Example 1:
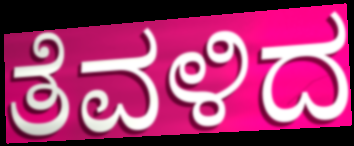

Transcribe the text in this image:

ತೆವಳಿದ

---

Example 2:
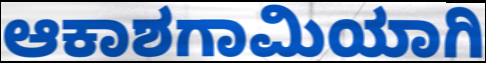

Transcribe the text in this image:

ಆಕಾಶಗಾಮಿಯಾಗಿ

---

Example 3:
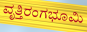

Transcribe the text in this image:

ವೃತ್ತಿರಂಗಭೂಮಿ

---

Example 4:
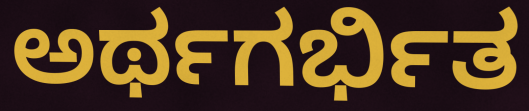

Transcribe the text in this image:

ಅರ್ಥಗರ್ಭಿತ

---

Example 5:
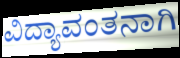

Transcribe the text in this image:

ವಿದ್ಯಾವಂತನಾಗಿ